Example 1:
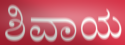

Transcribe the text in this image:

ಶಿವಾಯ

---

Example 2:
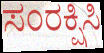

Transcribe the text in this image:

ಸಂರಕ್ಷಿಸಿ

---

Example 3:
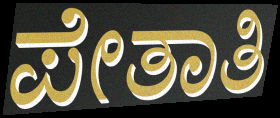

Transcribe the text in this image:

ಪೇತಾತಿ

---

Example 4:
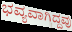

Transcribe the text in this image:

ಭವ್ಯವಾಗಿದ್ದವು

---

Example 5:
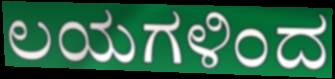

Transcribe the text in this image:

ಲಯಗಳಿಂದ